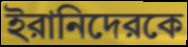
ইরানিদেরকে